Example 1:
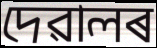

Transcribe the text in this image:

দেৱালৰ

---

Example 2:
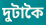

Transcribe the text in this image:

দুটাকৈ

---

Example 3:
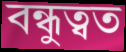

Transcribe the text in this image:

বন্ধুত্বত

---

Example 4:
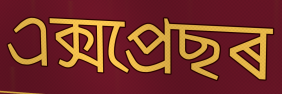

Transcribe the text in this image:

এক্সপ্ৰেছৰ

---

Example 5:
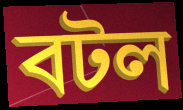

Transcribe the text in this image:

বটল